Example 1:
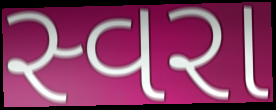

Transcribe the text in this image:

સ્વરા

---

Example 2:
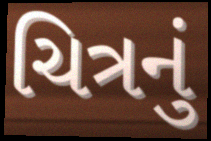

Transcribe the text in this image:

ચિત્રનું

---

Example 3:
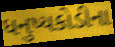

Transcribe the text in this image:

ધનુષ્યકોડીના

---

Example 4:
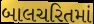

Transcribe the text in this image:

બાલચરિતમાં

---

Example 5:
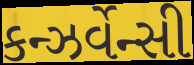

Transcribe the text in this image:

કન્ઝર્વેન્સી